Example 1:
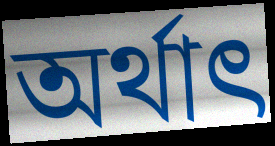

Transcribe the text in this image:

অৰ্থাৎ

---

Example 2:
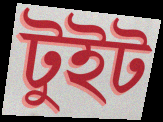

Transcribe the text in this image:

টুইট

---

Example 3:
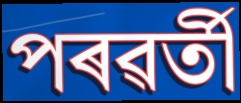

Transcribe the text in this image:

পৰৱৰ্তী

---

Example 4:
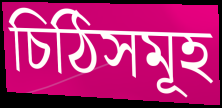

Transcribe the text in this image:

চিঠিসমূহ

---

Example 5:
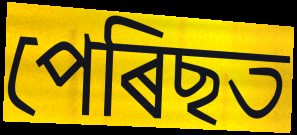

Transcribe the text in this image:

পেৰিছত